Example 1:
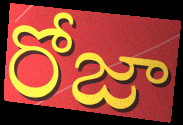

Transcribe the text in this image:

రోజా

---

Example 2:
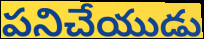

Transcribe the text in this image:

పనిచేయుడు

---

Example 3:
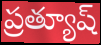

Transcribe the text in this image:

ప్రత్యూష్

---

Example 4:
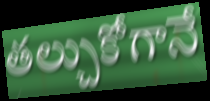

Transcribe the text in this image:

తల్చుకోగానే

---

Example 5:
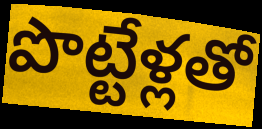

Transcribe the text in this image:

పొట్టేళ్లతో